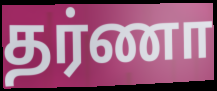
தர்ணா